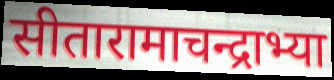
सीतारामाचन्द्राभ्या